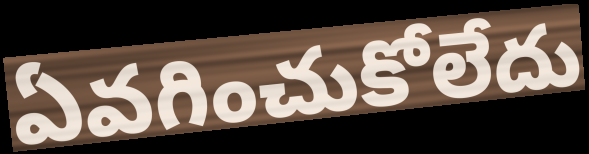
ఏవగించుకోలేదు